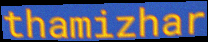
thamizhar